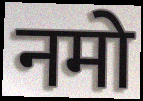
नमो